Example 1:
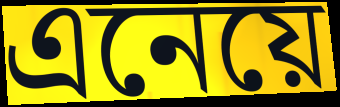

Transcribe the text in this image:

এনেয়ে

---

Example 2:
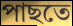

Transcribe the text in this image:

পাছতে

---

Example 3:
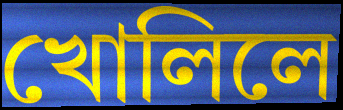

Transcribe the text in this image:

খোলিলে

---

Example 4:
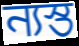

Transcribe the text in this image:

ন্যস্ত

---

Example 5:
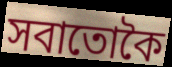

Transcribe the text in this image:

সবাতোকৈ